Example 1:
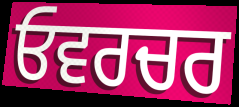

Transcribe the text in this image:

ਓਵਰਚਰ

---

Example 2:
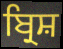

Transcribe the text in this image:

ਬ੍ਰਿਸ਼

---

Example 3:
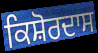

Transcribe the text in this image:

ਕਿਸ਼ੋਰਦਾਸ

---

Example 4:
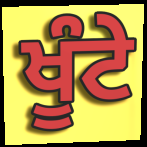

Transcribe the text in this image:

ਖੂੰਟੇ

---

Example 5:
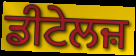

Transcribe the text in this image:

ਡੀਟੇਲਜ਼